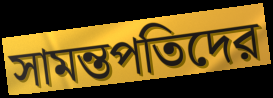
সামন্তপতিদের